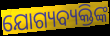
ଯୋଗ୍ୟବ୍ୟକ୍ତିଙ୍କ